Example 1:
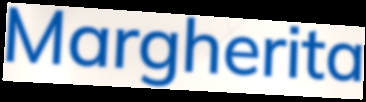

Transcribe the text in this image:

Margherita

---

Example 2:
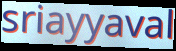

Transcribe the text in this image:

sriayyaval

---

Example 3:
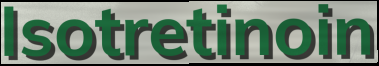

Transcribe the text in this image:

Isotretinoin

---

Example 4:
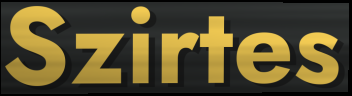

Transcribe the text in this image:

Szirtes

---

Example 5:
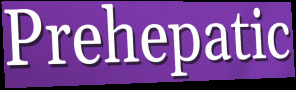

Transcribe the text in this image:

Prehepatic